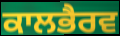
ਕਾਲਭੈਰਵ